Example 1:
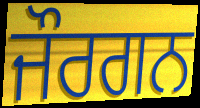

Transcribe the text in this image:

ਜੌਰਗਨ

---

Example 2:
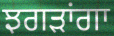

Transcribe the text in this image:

ਝਗੜਾਂਗਾ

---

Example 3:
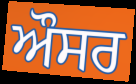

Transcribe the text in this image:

ਔਸਰ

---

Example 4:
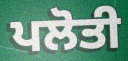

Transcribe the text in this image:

ਪਲੋਤੀ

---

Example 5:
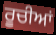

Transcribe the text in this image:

ਰੂਚੀਆਂ